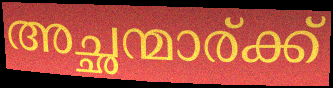
അച്ഛന്മാര്ക്ക്